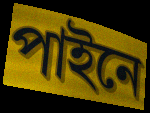
পাইনে